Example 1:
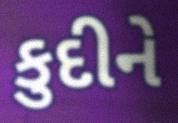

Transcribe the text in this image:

કુદીને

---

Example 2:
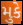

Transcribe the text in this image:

મુકે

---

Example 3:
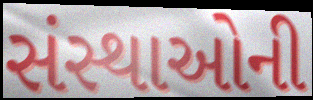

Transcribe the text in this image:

સંસ્થાઓની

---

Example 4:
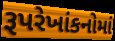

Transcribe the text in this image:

રૂપરેખાંકનોમાં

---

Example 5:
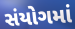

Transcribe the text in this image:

સંયોગમાં